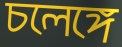
চলেঙ্গে